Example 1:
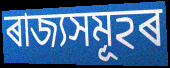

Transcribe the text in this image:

ৰাজ্যসমূহৰ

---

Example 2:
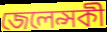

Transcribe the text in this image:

জেলেন্সকী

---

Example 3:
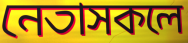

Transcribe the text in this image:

নেতাসকলে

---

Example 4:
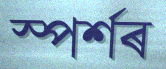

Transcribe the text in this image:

স্পৰ্শৰ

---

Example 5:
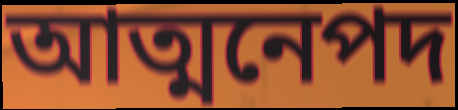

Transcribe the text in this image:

আত্মনেপদ